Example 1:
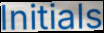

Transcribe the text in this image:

Initials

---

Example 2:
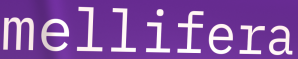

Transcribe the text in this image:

mellifera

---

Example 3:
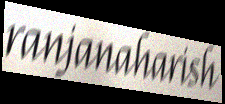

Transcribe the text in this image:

ranjanaharish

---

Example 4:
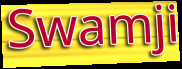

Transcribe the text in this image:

Swamji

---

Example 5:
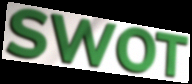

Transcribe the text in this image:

SWOT